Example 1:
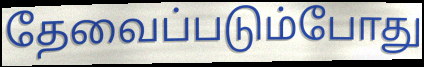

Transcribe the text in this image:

தேவைப்படும்போது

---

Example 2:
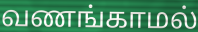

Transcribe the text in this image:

வணங்காமல்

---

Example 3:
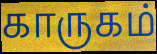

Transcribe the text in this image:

காருகம்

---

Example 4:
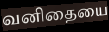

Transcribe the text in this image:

வனிதையை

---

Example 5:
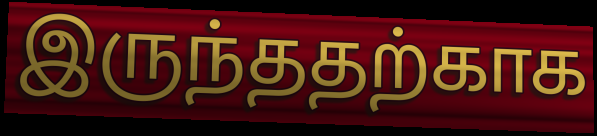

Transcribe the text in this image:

இருந்ததற்காக